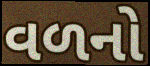
વળનો